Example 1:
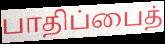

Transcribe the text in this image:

பாதிப்பைத்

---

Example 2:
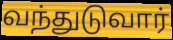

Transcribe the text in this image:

வந்துடுவார்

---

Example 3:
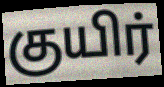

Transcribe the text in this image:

குயிர்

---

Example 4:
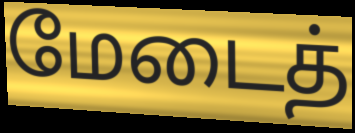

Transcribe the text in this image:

மேடைத்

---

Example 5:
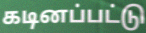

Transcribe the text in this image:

கடினப்பட்டு